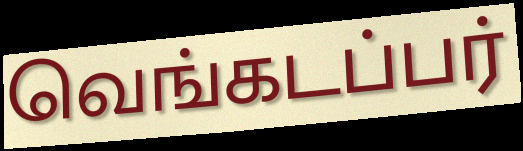
வெங்கடப்பர்